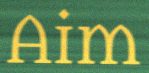
Aim